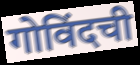
गोविंदची